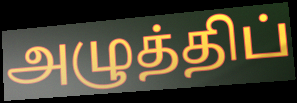
அழுத்திப்